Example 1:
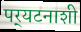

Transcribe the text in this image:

पर्यटनाशी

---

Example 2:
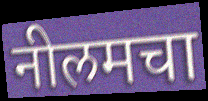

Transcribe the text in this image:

नीलमचा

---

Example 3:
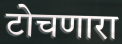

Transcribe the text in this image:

टोचणारा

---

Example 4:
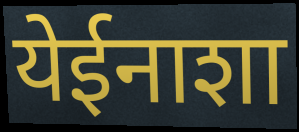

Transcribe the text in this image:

येईनाशा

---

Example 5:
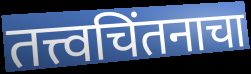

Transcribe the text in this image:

तत्त्वचिंतनाचा